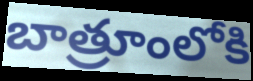
బాత్రూంలోకి